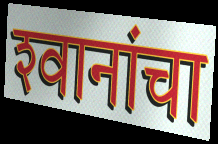
श्वानांचा